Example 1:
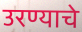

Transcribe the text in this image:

उरण्याचे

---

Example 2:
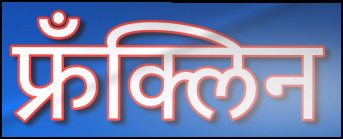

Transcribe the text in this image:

फ्रँक्लिन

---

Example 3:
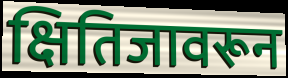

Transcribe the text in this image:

क्षितिजावरून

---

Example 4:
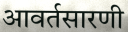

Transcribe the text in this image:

आवर्तसारणी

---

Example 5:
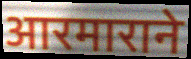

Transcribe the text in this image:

आरमाराने